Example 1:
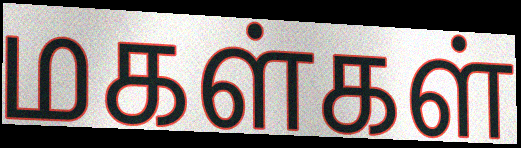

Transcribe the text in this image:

மகள்கள்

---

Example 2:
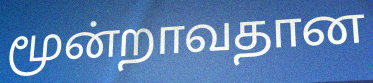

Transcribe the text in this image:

மூன்றாவதான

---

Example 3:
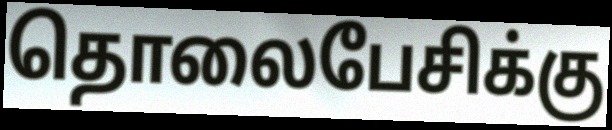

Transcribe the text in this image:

தொலைபேசிக்கு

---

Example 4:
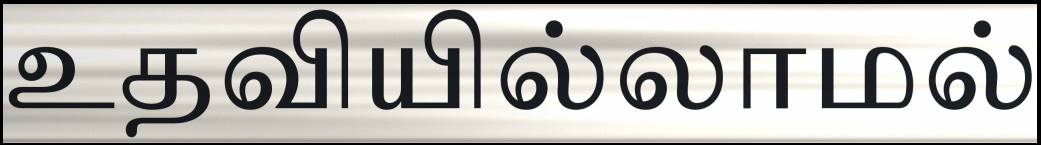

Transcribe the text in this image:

உதவியில்லாமல்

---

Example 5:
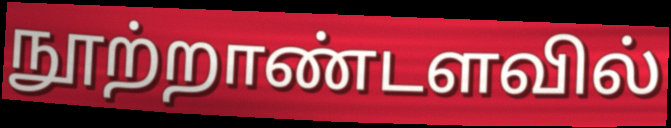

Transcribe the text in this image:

நூற்றாண்டளவில்